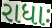
રાધાઃ